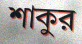
শাকুর